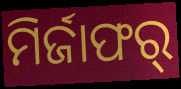
ମିର୍ଜାଫର୍